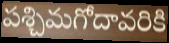
పశ్చిమగోదావరికి